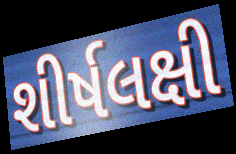
શીર્ષલક્ષી